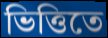
ভিত্তিতে